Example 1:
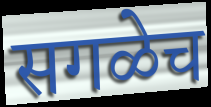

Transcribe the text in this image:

सगळेच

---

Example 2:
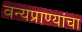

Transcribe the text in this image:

वन्यप्राण्यांचा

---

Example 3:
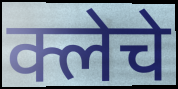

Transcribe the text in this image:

क्लेचे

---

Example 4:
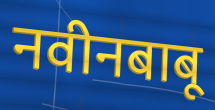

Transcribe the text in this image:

नवीनबाबू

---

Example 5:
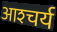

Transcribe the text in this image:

आश्‍चर्य